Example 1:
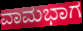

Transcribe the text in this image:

ವಾಮಭಾಗ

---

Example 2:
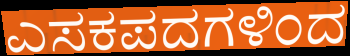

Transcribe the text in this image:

ಎಸಕಪದಗಳಿಂದ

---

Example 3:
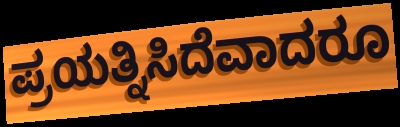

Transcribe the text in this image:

ಪ್ರಯತ್ನಿಸಿದೆವಾದರೂ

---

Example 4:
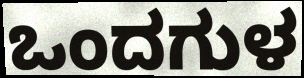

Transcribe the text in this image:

ಒಂದಗುಳ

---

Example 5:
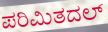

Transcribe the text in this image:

ಪರಿಮಿತದಲ್